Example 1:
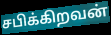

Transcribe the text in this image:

சபிக்கிறவன்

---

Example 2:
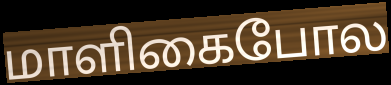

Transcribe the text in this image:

மாளிகைபோல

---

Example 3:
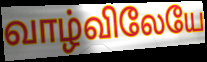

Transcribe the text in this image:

வாழ்விலேயே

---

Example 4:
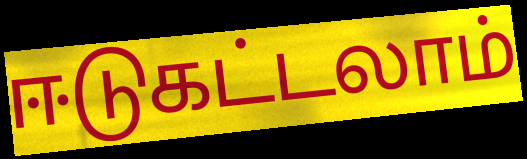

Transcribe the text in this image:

ஈடுகட்டலாம்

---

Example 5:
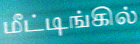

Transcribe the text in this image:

மீட்டிங்கில்